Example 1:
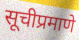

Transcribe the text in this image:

सूचीप्रमाणे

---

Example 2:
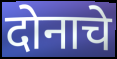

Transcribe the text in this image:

दोनाचे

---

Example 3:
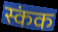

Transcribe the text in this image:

स्कंक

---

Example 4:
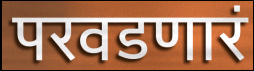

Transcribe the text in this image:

परवडणारं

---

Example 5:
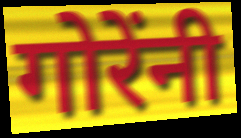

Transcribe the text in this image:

गोरेंनी